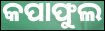
କପାଫୁଲ